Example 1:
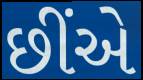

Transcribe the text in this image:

છીંએ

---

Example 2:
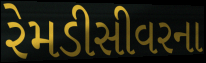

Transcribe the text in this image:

રેમડીસીવરના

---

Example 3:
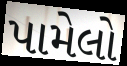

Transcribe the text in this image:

પામેલો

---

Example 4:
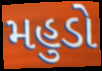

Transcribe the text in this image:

મહુડો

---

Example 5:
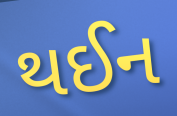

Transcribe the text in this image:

થઈન